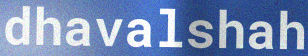
dhavalshah